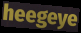
heegeye